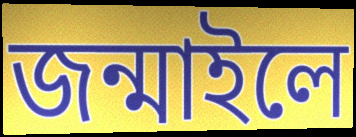
জন্মাইলে